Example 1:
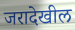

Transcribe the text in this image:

जरादेखील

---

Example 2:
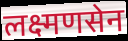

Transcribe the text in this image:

लक्ष्मणसेन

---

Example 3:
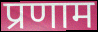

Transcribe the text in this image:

प्रणाम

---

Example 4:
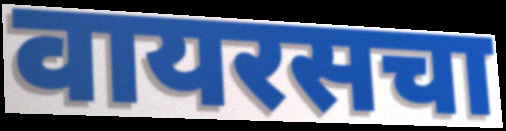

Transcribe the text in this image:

वायरसचा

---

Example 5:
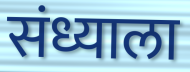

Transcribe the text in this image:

संध्याला